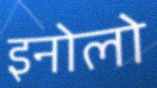
इनोलो